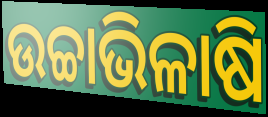
ଉଚ୍ଚାଭିଳାଷି